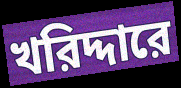
খরিদ্দারে